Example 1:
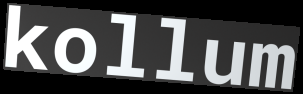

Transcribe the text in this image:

kollum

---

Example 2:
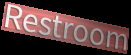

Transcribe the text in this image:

Restroom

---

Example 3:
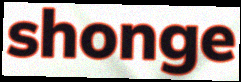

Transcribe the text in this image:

shonge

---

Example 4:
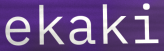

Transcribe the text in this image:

ekaki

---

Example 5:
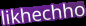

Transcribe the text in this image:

likhechho